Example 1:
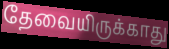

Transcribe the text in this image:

தேவையிருக்காது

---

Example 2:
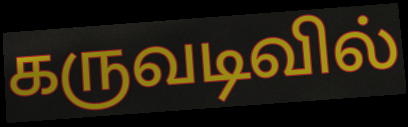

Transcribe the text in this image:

கருவடிவில்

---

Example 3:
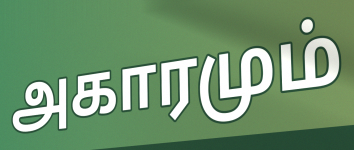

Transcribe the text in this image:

அகாரமும்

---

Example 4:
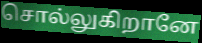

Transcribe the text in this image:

சொல்லுகிறானே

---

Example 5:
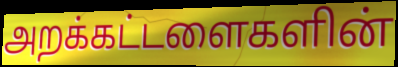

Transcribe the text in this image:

அறக்கட்டளைகளின்